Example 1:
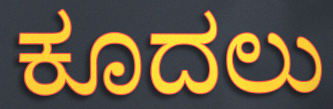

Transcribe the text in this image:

ಕೂದಲು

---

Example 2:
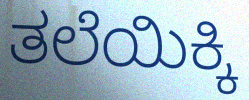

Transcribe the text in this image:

ತಲೆಯಿಕ್ಕಿ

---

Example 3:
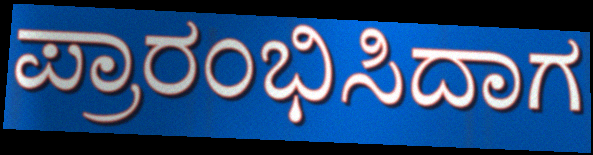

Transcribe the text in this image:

ಪ್ರಾರಂಭಿಸಿದಾಗ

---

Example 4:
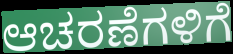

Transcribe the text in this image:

ಆಚರಣೆಗಳಿಗೆ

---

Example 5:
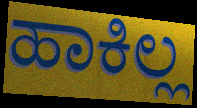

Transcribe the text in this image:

ಹಾಕಿಲ್ಲ